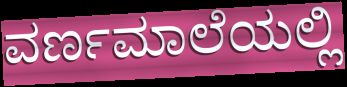
ವರ್ಣಮಾಲೆಯಲ್ಲಿ